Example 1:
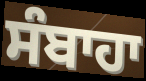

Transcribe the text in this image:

ਸੰਬਾਹਾ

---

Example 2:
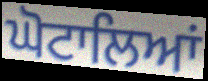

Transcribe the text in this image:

ਘੋਟਾਲਿਆਂ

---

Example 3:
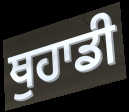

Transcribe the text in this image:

ਥੁਹਾਡੀ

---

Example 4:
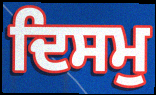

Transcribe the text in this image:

ਦਿਸਮੁ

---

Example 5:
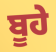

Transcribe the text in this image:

ਬੂਹੇ